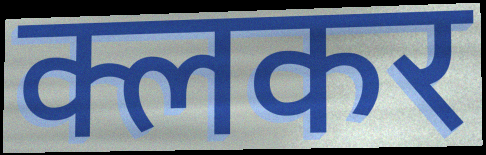
क्लकर